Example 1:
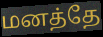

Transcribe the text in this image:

மனத்தே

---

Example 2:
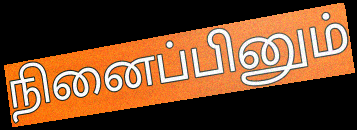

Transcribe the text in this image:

நினைப்பினும்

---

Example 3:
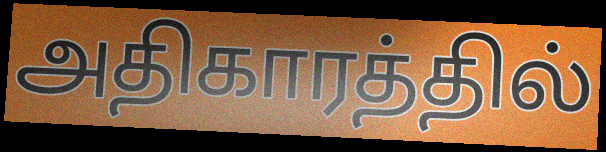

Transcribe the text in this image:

அதிகாரத்தில்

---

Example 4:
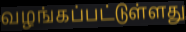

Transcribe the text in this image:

வழங்கப்பட்டுள்ளது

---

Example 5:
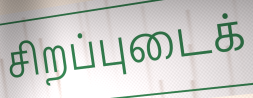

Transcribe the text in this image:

சிறப்புடைக்